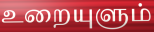
உறையுளும்